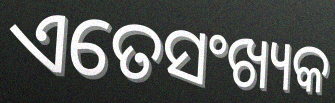
ଏତେସଂଖ୍ୟକ